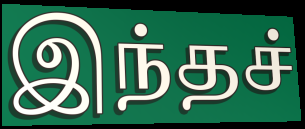
இந்தச்